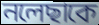
নলেছাকে